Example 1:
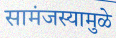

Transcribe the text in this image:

सामंजस्यामुळे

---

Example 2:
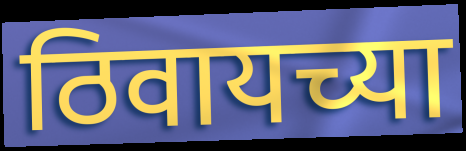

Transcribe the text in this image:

ठिवायच्या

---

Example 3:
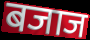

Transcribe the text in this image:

बजाज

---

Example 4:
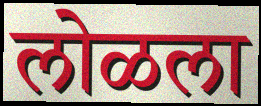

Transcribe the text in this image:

लोळला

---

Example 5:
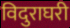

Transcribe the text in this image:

विदुराघरी